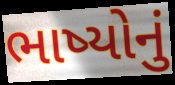
ભાષ્યોનું